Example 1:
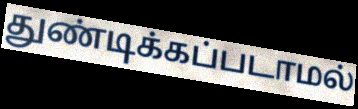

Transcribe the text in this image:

துண்டிக்கப்படாமல்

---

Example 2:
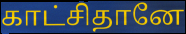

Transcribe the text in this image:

காட்சிதானே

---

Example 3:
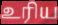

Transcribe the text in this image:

உரிய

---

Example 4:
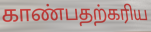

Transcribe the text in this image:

காண்பதற்கரிய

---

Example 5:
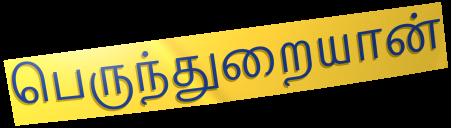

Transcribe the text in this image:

பெருந்துறையான்